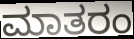
ಮಾತರಂ